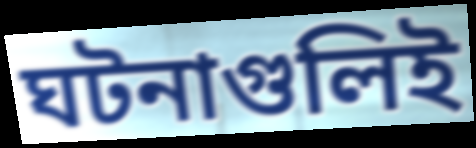
ঘটনাগুলিই